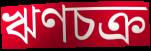
ঋণচক্র